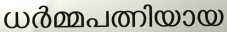
ധർമ്മപത്നിയായ